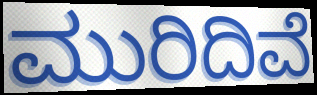
ಮುರಿದಿವೆ